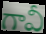
గావీ